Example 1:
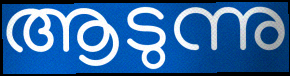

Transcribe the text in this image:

ആടുന്നു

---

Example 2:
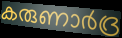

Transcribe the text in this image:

കരുണാർദ്ര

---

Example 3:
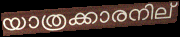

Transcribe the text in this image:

യാത്രക്കാരനില്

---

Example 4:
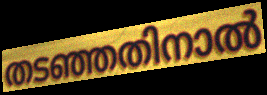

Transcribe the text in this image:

തടഞ്ഞതിനാൽ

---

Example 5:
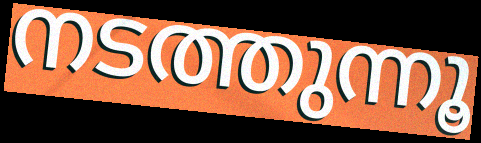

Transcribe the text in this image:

നടത്തുന്നൂ